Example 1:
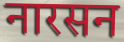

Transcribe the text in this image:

नारसन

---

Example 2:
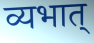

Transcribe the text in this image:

व्यभात्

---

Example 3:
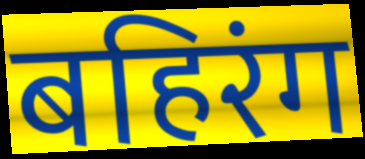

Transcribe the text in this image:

बहिरंग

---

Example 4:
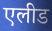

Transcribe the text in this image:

एलीड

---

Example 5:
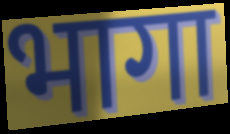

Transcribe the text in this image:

भागा